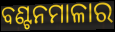
ବଣ୍ଟନମାଳାର